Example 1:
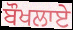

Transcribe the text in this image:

ਬੌਖਲਾਏ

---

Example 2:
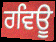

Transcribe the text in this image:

ਰਵਿਊ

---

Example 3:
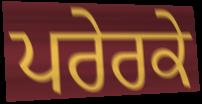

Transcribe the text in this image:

ਪਰੇਰਕੇ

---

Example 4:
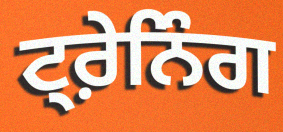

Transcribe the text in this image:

ਟ੍ਰ਼ੇਨਿੰਗ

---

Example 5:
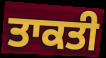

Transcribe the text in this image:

ਤਾਕਤੀ